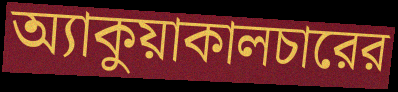
অ্যাকুয়াকালচারের